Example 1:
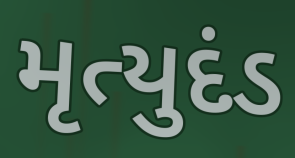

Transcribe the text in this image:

મૃત્યુદંડ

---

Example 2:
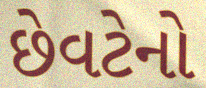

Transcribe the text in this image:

છેવટેનો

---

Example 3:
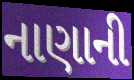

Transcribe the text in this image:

નાણાની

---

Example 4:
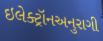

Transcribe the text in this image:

ઇલેક્ટ્રૉનઅનુરાગી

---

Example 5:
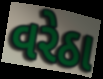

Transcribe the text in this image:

વરેઠા